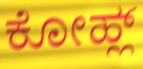
ಕೋಹ್ಲ್